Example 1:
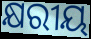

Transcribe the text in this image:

କ୍ଷରୀୟ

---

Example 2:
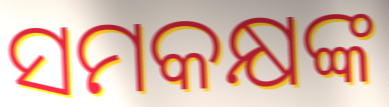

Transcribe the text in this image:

ସମକକ୍ଷଙ୍କ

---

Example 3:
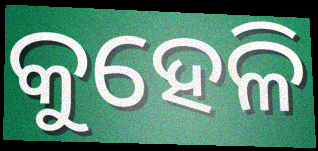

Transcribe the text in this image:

କୁହେଳି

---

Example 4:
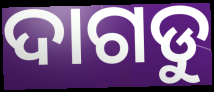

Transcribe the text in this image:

ଦାଗଡୁ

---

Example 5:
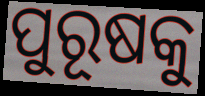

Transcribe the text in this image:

ପୁରୂଷକୁ